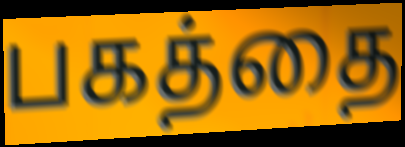
பகத்தை